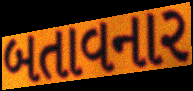
બતાવનાર